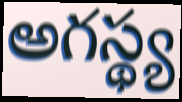
అగస్థ్య